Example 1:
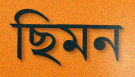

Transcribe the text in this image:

ছিমন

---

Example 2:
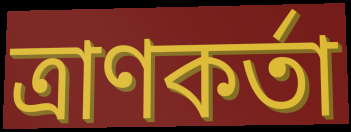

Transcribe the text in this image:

ত্ৰাণকৰ্তা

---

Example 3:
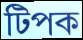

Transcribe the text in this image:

টিপক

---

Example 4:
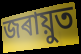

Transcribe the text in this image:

জৰায়ুত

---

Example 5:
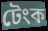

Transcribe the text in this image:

টেংক